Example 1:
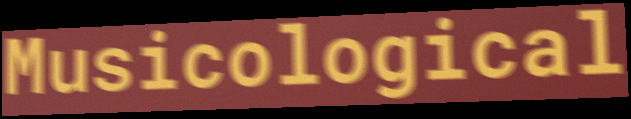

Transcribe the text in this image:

Musicological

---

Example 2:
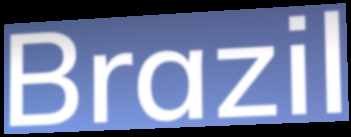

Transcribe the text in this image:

Brazil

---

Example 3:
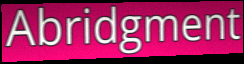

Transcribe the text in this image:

Abridgment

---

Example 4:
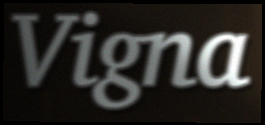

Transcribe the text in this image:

Vigna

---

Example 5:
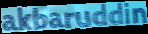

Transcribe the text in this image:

akbaruddin